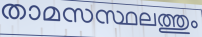
താമസസ്ഥലത്തും